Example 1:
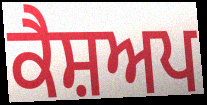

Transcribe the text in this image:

ਕੈਸ਼ਅਪ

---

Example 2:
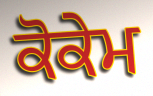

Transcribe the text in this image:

ਕੋਕੇਮ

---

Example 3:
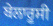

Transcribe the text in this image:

ਬੇਲਾਰੂਸੀ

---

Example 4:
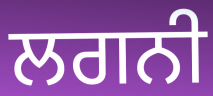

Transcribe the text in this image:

ਲਗਨੀ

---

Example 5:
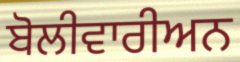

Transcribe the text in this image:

ਬੋਲੀਵਾਰੀਅਨ